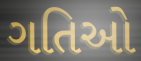
ગતિઓ